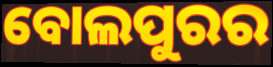
ବୋଲପୁରର